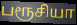
பரூசியா